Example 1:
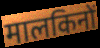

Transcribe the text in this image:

मालकिनों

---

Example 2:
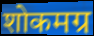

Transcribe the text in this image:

शोकमग्र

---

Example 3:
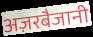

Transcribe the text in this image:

अज़रबैजानी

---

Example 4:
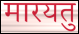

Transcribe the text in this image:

मारयतु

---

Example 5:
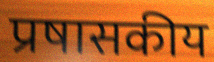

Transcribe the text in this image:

प्रषासकीय